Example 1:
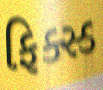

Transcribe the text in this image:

ફિક્સ્ડ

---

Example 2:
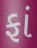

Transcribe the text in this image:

ફાં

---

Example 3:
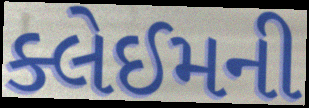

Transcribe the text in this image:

ક્લેઈમની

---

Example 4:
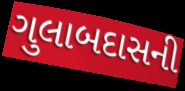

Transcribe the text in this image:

ગુલાબદાસની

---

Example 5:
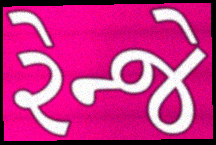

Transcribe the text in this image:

રેન્જે